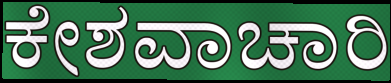
ಕೇಶವಾಚಾರಿ